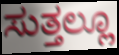
ಸುತ್ತಲ್ಲೂ